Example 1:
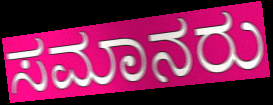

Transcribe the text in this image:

ಸಮಾನರು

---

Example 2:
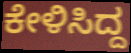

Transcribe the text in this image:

ಕೇಳಿಸಿದ್ದ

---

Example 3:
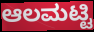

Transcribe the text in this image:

ಆಲಮಟ್ಟಿ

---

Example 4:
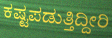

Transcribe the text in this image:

ಕಷ್ಟಪಡುತ್ತಿದ್ದೀರಿ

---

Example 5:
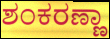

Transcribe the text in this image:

ಶಂಕರಣ್ಣಾ